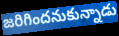
జరిగిందనుకున్నాడు